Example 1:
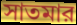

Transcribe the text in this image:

সাতমার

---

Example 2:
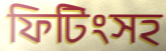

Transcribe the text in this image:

ফিটিংসহ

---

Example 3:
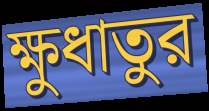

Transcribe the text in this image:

ক্ষুধাতুর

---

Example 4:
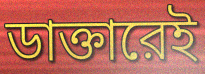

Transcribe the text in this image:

ডাক্তারেই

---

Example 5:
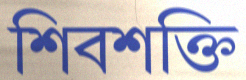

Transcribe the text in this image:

শিবশক্তি